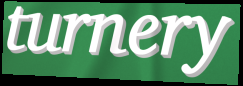
turnery